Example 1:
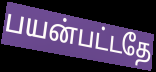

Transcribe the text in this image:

பயன்பட்டதே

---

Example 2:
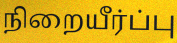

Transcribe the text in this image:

நிறையீர்ப்பு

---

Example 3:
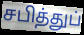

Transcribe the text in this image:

சபித்துப்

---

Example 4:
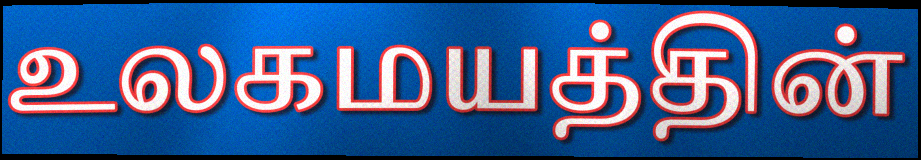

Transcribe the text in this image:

உலகமயத்தின்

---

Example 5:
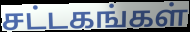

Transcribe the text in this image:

சட்டகங்கள்